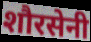
शौरसेनी